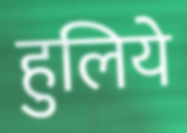
हुलिये